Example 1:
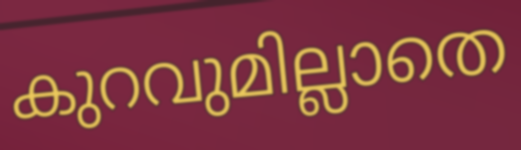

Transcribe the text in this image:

കുറവുമില്ലാതെ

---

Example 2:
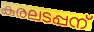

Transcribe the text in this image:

കുരലടപ്പന്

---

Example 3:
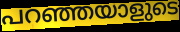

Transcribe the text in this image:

പറഞ്ഞയാളുടെ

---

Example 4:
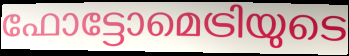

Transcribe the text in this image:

ഫോട്ടോമെട്രിയുടെ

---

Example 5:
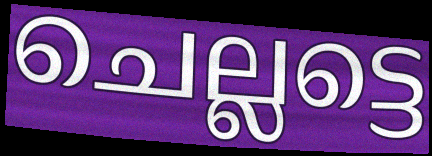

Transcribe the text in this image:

ചെല്ലട്ടെ